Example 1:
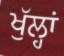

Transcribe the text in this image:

ਖੁੱਲ੍ਹਾਂ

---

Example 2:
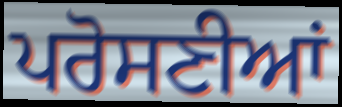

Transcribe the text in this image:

ਪਰੋਸਣੀਆਂ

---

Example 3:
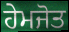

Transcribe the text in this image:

ਹੇਮਜੋਤ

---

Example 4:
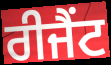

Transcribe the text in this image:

ਰੀਜੈਂਟ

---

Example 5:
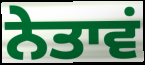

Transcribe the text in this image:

ਨੇਤਾਵਂ